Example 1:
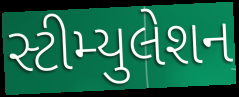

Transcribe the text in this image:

સ્ટીમ્યુલેશન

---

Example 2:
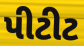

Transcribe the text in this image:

પીટીટ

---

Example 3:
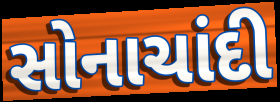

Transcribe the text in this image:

સોનાચાંદી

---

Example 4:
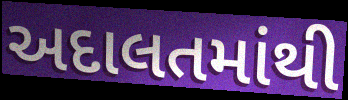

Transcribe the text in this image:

અદાલતમાંથી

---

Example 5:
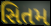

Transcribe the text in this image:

સિતમ